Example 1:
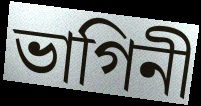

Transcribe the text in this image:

ভাগিনী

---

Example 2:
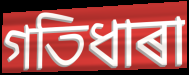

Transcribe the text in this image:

গতিধাৰা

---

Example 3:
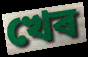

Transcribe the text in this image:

খেৰ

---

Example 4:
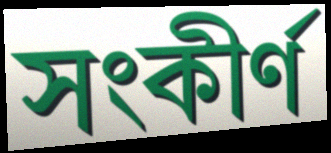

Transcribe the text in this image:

সংকীৰ্ণ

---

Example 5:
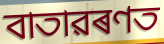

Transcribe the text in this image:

বাতাৱৰণত